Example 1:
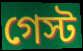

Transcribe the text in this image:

গেস্ট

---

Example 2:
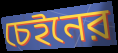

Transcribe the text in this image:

চেইনের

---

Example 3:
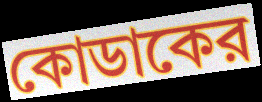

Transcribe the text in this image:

কোডাকের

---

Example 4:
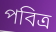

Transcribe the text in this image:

পবিত্র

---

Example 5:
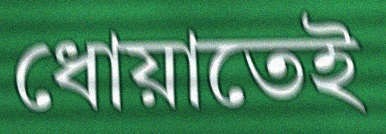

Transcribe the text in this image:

ধোয়াতেই